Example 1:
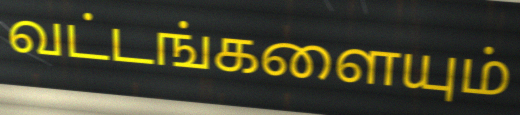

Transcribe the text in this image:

வட்டங்களையும்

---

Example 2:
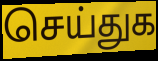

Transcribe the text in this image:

செய்துக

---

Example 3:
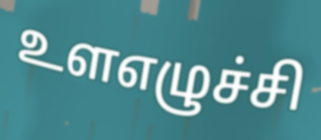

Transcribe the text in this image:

உளஎழுச்சி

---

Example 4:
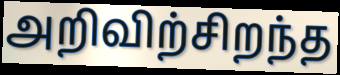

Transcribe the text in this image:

அறிவிற்சிறந்த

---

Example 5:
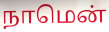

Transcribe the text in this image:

நாமென்